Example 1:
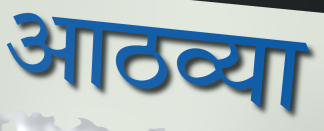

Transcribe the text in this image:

आठव्या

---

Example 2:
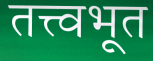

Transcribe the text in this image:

तत्त्वभूत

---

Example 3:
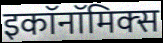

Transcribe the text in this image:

इकॉनॉमिक्‍स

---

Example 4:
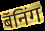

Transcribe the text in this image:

बॅनिंग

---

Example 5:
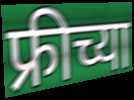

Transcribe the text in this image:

फ्रीच्या